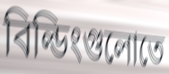
বিল্ডিংগুলোতে